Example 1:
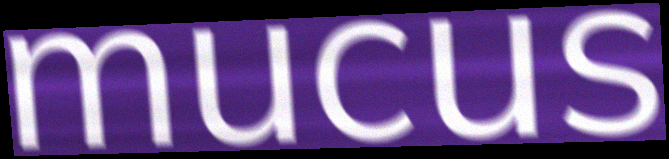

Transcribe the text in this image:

mucus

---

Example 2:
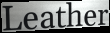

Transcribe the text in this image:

Leather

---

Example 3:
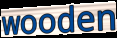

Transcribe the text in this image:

wooden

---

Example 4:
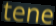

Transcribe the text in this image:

tene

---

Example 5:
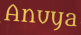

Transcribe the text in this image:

Anuya